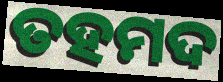
ତହମଦ